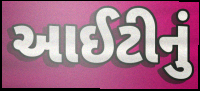
આઈટીનું